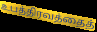
உபத்திரவத்தைத்